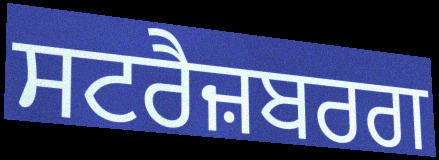
ਸਟਰੈਜ਼ਬਰਗ